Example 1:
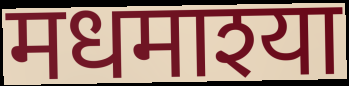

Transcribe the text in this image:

मधमाश्या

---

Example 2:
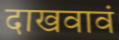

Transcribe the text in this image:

दाखवावं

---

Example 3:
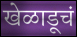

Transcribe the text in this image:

खेळाडूचं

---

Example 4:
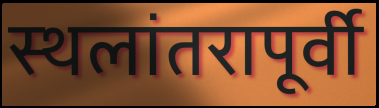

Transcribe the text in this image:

स्थलांतरापूर्वी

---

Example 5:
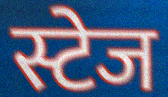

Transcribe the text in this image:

स्टेज